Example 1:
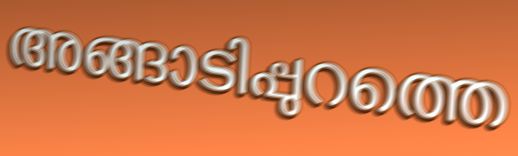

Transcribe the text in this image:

അങ്ങാടിപ്പുറത്തെ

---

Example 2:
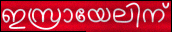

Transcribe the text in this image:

ഇസ്രായേലിന്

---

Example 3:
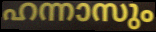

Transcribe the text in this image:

ഹന്നാസും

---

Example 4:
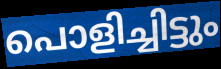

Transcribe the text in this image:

പൊളിച്ചിട്ടും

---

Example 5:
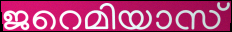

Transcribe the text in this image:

ജറെമിയാസ്